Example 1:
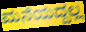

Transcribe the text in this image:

ಮನೆಯದ್ದಲ್ಲ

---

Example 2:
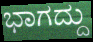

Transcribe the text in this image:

ಭಾಗದ್ದು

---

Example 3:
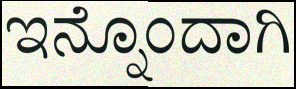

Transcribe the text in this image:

ಇನ್ನೊಂದಾಗಿ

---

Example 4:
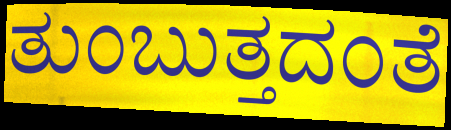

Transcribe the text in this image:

ತುಂಬುತ್ತದಂತೆ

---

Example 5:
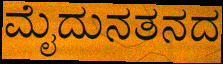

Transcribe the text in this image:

ಮೈದುನತನದ